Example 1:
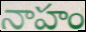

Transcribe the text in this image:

నాహం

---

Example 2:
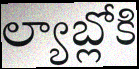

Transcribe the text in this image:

ల్యాబ్లోకి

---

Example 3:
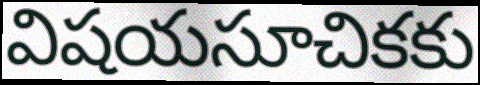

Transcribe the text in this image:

విషయసూచికకు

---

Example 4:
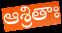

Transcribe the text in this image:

ఆశ్రితాః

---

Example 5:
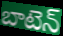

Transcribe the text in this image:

బాటెన్